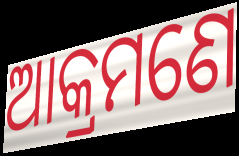
ଆକ୍ରମଣେ